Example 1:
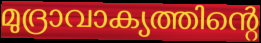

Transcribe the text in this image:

മുദ്രാവാക്യത്തിന്റെ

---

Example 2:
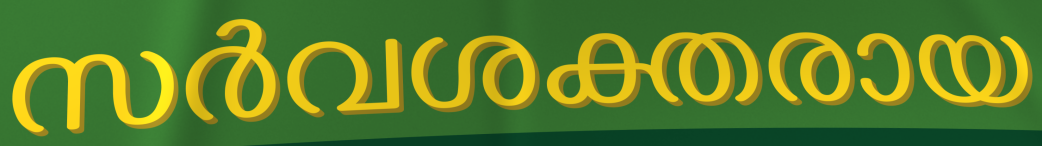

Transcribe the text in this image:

സർവശക്തരായ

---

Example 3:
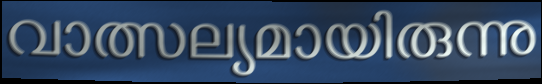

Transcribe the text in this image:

വാത്സല്യമായിരുന്നു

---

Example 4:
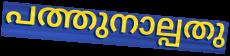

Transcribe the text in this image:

പത്തുനാല്പതു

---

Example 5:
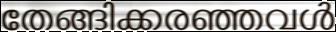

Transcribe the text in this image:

തേങ്ങിക്കരഞ്ഞവൾ